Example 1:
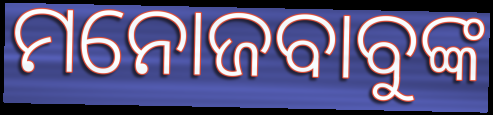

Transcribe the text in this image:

ମନୋଜବାବୁଙ୍କ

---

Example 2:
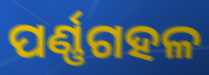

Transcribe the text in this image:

ପର୍ଣ୍ଣଗହଳ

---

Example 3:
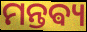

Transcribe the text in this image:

ମନ୍ତଵ୍ୟ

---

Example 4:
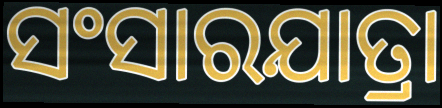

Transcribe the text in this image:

ସଂସାରଯାତ୍ରା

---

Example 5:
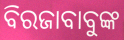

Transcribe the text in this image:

ବିରଜାବାବୁଙ୍କ